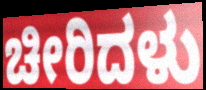
ಚೀರಿದಳು